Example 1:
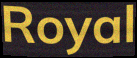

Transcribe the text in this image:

Royal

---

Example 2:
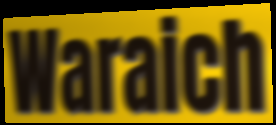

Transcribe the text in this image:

Waraich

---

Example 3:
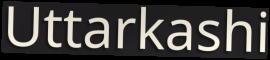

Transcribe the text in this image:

Uttarkashi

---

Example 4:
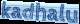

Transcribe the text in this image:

kadhalu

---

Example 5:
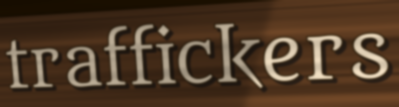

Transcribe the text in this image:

traffickers